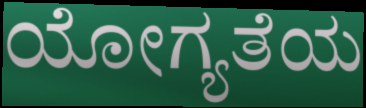
ಯೋಗ್ಯತೆಯ